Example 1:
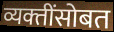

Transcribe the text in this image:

व्यक्‍तींसोबत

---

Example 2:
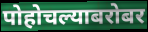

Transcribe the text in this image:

पोहोचल्याबरोबर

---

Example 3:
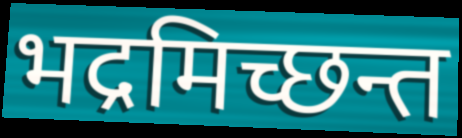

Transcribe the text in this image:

भद्रमिच्छन्त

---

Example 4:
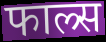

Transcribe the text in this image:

फाल्स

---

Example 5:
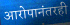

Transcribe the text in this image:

आरोपानंतरही